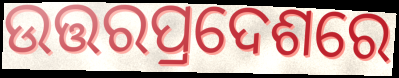
ଉତ୍ତରପ୍ରଦେଶରେ